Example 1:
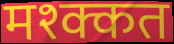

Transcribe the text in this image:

मश्क्कत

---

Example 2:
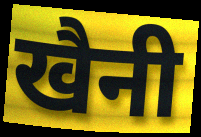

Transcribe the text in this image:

खैनी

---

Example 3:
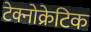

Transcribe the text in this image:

टेक्नोक्रेटिक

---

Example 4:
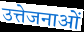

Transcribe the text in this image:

उत्तेजनाओं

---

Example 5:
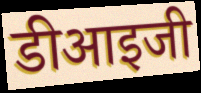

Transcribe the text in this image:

डीआइजी